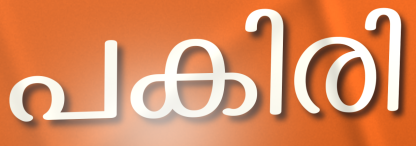
പകിരി